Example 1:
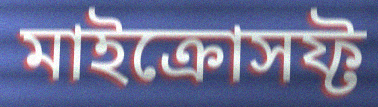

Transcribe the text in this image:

মাইক্রোসফ্ট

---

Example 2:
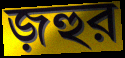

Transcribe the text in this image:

জ়হুর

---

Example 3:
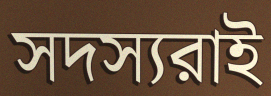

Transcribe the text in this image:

সদস্যরাই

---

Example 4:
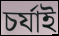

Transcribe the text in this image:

চর্যাই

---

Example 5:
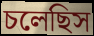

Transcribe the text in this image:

চলেছিস